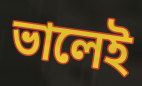
ভালেই